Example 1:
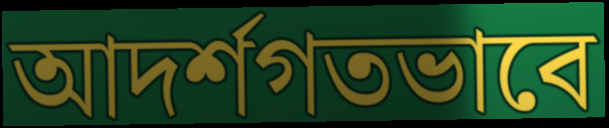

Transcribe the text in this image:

আদর্শগতভাবে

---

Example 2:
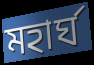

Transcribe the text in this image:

মহার্ঘ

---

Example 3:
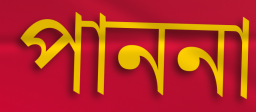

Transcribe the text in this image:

পাননা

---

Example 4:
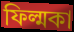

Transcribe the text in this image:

ফিল্মকা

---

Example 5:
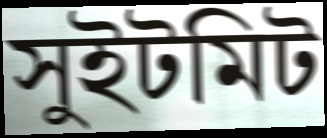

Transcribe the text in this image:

সুইটমিট